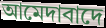
আমেদাবাদে